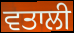
ਵਤਾਲੀ